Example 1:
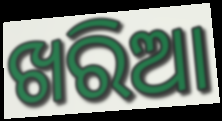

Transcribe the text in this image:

ଖରିଆ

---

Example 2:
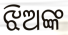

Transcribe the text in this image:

ଝିଅଙ୍କ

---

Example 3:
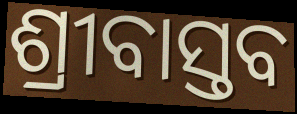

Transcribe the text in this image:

ଶ୍ରୀବାସ୍ତବ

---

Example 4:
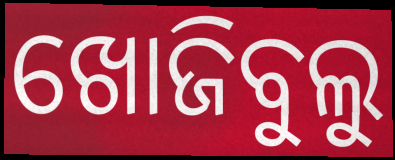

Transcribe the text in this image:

ଖୋଜିବୁଲୁ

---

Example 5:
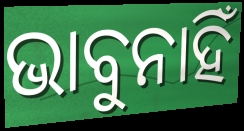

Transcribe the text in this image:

ଭାବୁନାହିଁ